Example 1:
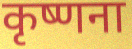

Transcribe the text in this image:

कृष्णना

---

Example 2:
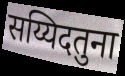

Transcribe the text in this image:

सय्यिदतुना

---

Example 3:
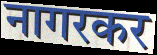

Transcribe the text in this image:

नागरकर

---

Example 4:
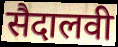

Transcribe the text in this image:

सैदालवी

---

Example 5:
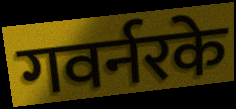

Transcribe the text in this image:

गवर्नरके